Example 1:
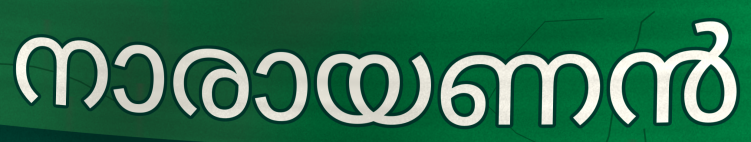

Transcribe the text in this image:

നാരായണൻ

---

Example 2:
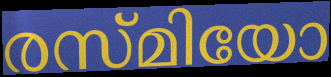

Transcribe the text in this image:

രസ്മിയോ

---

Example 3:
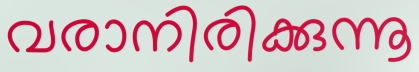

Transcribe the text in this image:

വരാനിരിക്കുന്നൂ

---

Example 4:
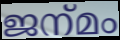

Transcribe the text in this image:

ജന്‌മം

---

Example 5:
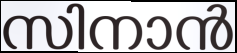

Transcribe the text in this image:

സിനാൻ